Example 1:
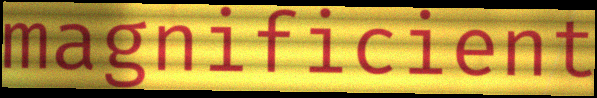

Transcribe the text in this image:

magnificient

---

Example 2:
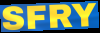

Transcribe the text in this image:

SFRY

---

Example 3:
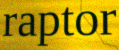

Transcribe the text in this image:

raptor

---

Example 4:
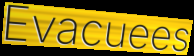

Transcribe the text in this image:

Evacuees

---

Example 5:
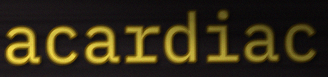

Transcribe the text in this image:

acardiac